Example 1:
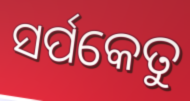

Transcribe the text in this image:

ସର୍ପକେତୁ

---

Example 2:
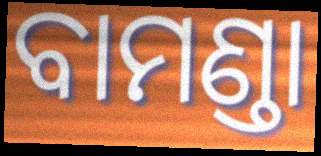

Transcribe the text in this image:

ବାମଣ୍ଡା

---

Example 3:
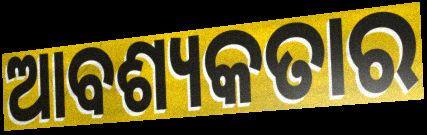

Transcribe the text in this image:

ଆବଶ୍ୟକତାର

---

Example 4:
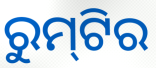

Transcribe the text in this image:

ରୁମ୍‌ଟିର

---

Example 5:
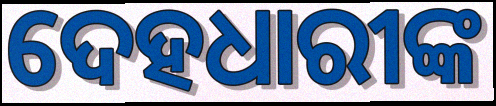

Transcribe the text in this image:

ଦେହଧାରୀଙ୍କ